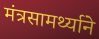
मंत्रसामर्थ्याने